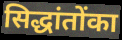
सिद्धांतोंका